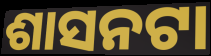
ଶାସନଟା